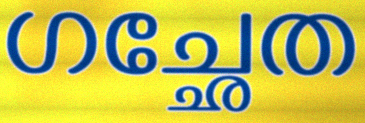
ഗച്ഛേത